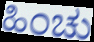
ಹಿಂಚು